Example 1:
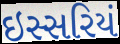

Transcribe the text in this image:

ઇસ્સરિયં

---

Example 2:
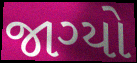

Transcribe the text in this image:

જાગ્યો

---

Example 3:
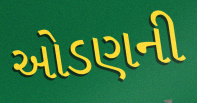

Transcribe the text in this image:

ઓડણની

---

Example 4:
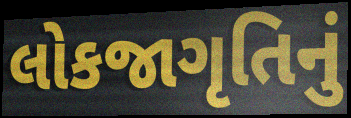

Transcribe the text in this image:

લોકજાગૃતિનું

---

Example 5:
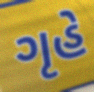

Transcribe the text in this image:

ગૃહે